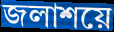
জলাশয়ে